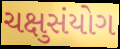
ચક્ષુસંયોગ